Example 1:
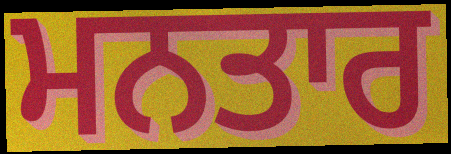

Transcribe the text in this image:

ਮਨਤਾਰ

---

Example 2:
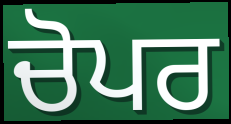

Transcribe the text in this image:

ਚੋਪਰ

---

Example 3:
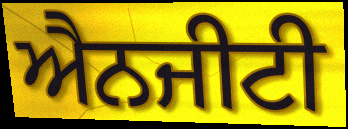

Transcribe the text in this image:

ਐਨਜੀਟੀ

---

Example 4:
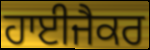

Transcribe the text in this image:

ਹਾਈਜੈਕਰ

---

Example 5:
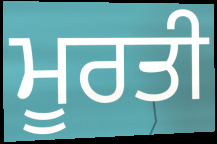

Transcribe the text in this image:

ਮੂਰਤੀ